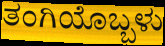
ತಂಗಿಯೊಬ್ಬಳು